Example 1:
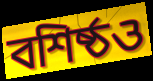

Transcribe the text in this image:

বশিষ্ঠও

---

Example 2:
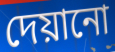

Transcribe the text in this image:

দেয়ানো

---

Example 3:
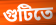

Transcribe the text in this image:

গুটিতে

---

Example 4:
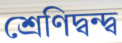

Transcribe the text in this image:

শ্রেণিদ্বন্দ্ব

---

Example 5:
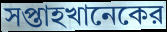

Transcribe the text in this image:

সপ্তাহখানেকের